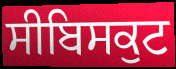
ਸੀਬਿਸਕੁਟ